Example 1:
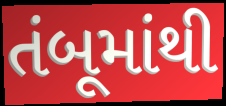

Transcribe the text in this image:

તંબૂમાંથી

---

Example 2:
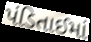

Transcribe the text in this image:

પંડિતાઈમાં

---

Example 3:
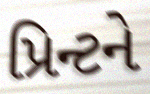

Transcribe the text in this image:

પ્રિન્ટને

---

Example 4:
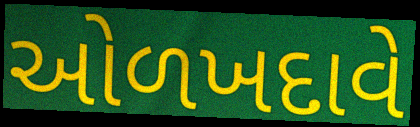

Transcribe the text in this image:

ઓળખદાવે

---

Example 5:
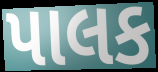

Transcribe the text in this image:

પાલક